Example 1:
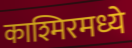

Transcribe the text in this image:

काश्मिरमध्ये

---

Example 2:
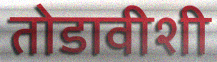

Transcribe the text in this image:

तोडावीशी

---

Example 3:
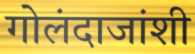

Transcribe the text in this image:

गोलंदाजांशी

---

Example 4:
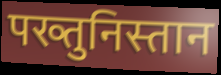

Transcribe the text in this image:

पख्तुनिस्तान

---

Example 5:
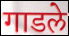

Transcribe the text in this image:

गाडले